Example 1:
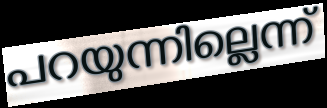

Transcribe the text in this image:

പറയുന്നില്ലെന്ന്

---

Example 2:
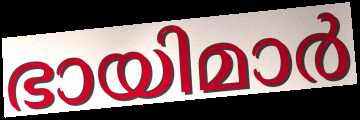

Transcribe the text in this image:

ഭായിമാർ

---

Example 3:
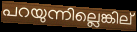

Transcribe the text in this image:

പറയുന്നില്ലെങ്കില്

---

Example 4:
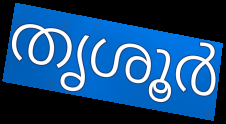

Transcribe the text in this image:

തൃശൂർ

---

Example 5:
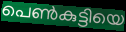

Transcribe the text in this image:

പെൺകുട്ടിയെ